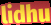
lidhu